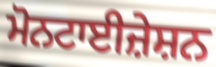
ਮੋਨਟਾਈਜ਼ੇਸ਼ਨ